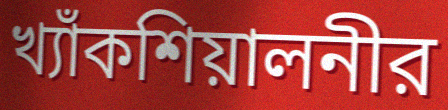
খ্যাঁকশিয়ালনীর